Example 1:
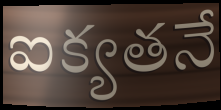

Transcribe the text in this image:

ఐక్యతనే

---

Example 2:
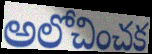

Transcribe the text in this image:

అలోచించక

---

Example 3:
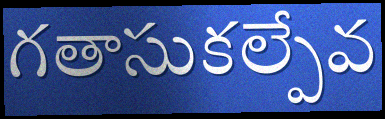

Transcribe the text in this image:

గతాసుకల్పేవ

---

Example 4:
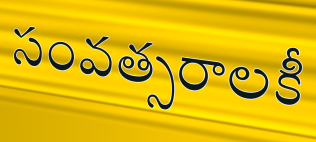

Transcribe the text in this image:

సంవత్సరాలకీ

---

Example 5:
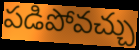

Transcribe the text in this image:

పడిపోవచ్చు